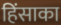
हिंसाका